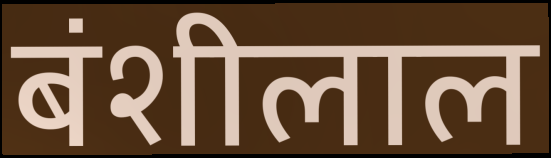
बंशीलाल